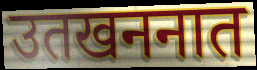
उतखननात